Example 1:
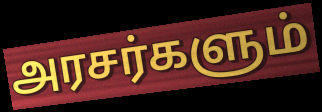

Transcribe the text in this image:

அரசர்களும்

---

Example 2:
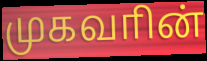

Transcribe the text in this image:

முகவரின்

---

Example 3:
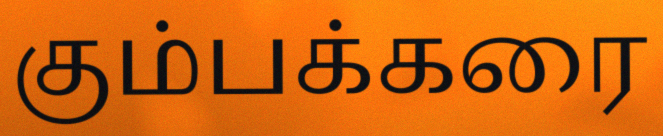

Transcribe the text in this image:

கும்பக்கரை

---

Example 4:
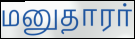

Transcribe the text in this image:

மனுதாரர்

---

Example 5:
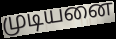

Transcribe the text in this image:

முடியனை